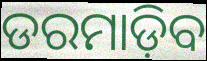
ଡରମାଡ଼ିବ